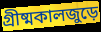
গ্রীষ্মকালজুড়ে